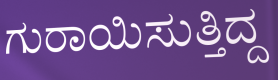
ಗುರಾಯಿಸುತ್ತಿದ್ದ